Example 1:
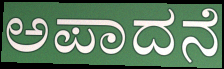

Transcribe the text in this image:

ಅಪಾದನೆ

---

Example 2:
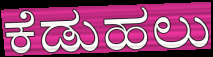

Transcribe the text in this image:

ಕೆಡುಹಲು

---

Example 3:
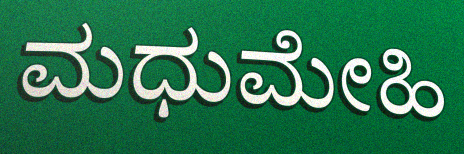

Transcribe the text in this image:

ಮಧುಮೇಹಿ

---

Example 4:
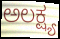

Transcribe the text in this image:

ಅಲಕ್ಷ್ಯ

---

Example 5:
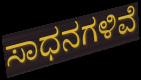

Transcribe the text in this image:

ಸಾಧನಗಳಿವೆ